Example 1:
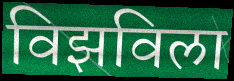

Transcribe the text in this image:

विझविला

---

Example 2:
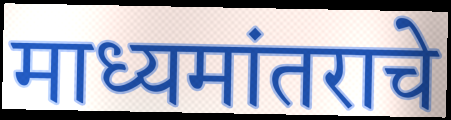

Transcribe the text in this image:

माध्यमांतराचे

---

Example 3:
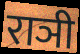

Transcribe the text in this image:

राञी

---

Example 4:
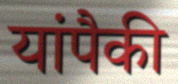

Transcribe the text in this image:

यांपैकी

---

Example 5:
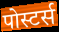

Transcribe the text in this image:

पोस्टर्स